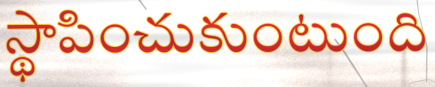
స్థాపించుకుంటుంది